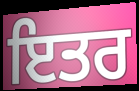
ਇਤਰ